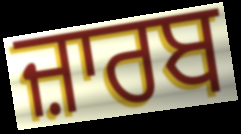
ਜ਼ਾਰਬ